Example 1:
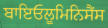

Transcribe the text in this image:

ਬਾਇਓਲੂਮਿਨਿਸੈਂਸ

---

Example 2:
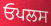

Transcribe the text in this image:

ਓਪਲਸ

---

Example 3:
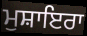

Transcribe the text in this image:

ਮੁਸ਼ਾਇਰਾ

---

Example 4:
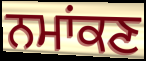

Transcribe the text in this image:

ਨਮਾਂਕਣ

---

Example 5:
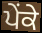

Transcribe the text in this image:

ਪੇਂਕੇ